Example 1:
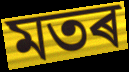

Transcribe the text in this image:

মতৰ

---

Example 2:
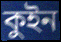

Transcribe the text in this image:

কুইন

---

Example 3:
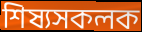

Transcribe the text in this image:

শিষ্যসকলক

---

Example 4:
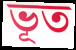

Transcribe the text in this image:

ভূত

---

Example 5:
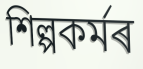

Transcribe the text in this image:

শিল্পকৰ্মৰ